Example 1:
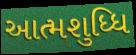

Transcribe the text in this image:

આત્મશુધ્ધિ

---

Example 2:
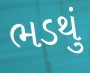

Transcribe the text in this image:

ભડથું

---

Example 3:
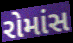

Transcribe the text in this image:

રોમાંસ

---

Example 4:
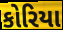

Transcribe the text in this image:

કોરિયા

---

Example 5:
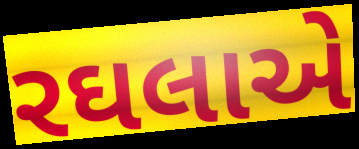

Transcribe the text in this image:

રઘલાએ